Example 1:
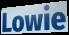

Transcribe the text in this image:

Lowie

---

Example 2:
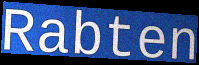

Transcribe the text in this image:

Rabten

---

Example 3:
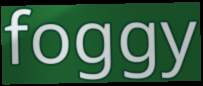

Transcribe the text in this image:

foggy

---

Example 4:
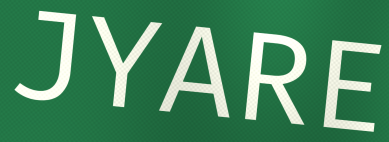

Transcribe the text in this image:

JYARE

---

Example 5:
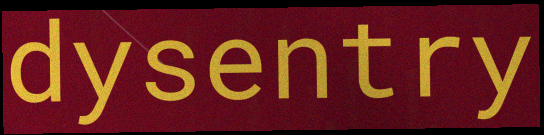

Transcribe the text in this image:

dysentry